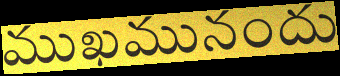
ముఖమునందు